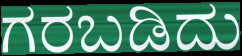
ಗರಬಡಿದು